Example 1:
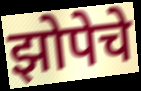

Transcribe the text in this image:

झोपेचे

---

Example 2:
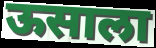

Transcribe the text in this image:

ऊसाला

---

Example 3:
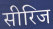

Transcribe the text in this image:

सीरिज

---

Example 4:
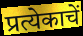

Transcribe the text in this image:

प्रत्येकाचें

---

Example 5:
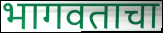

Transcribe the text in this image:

भागवताचा